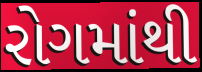
રોગમાંથી